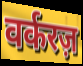
वर्करज़